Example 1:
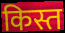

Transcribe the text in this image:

किस्त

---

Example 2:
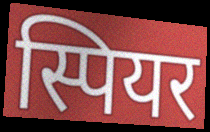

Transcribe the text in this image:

स्पियर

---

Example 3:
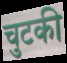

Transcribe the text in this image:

चुटकी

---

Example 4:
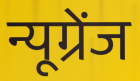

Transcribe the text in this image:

न्यूग्रेंज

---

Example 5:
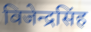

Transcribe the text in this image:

विजेन्द्रसिंह